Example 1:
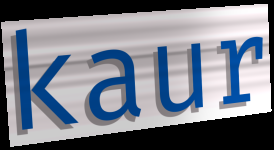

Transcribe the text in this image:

kaur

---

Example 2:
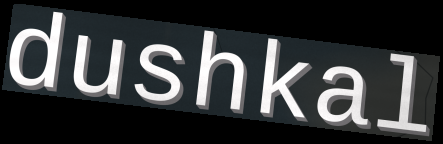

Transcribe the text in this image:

dushkal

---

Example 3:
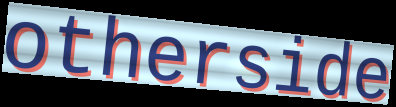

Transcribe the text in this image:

otherside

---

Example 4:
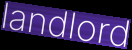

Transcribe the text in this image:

landlord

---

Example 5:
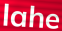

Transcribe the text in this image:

lahe